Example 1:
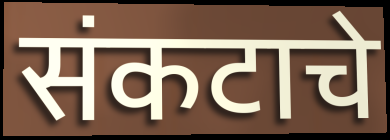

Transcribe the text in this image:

संकटाचे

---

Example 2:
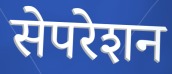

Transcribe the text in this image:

सेपरेशन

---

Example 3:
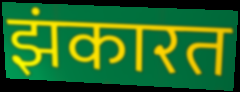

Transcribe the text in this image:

झंकारत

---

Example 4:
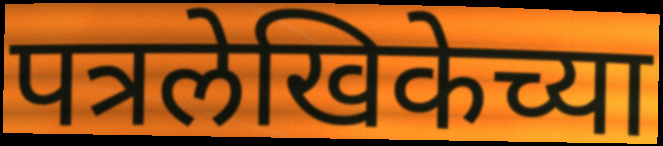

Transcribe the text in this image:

पत्रलेखिकेच्या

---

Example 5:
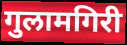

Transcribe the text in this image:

गुलामगिरी